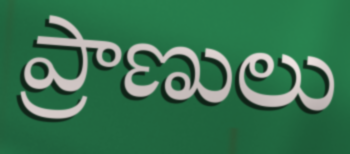
ప్రాణులు